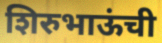
शिरुभाऊंची